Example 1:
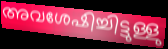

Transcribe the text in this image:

അവശേഷിച്ചിട്ടുള്ളു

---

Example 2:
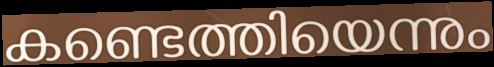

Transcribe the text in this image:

കണ്ടെത്തിയെന്നും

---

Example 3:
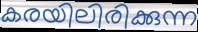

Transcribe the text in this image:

കരയിലിരിക്കുന്ന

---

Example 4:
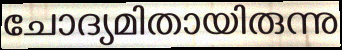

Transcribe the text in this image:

ചോദ്യമിതായിരുന്നു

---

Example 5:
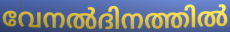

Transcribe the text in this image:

വേനൽദിനത്തിൽ